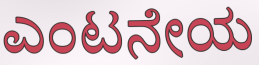
ಎಂಟನೇಯ